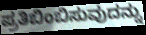
ಪ್ರತಿಬಿಂಬಿಸುವುದನ್ನು